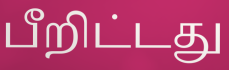
பீறிட்டது